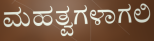
ಮಹತ್ವಗಳಾಗಲಿ